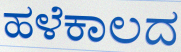
ಹಳೆಕಾಲದ